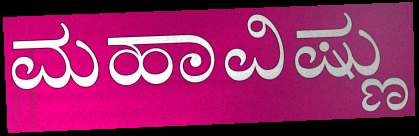
ಮಹಾವಿಷ್ಣು